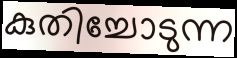
കുതിച്ചോടുന്ന